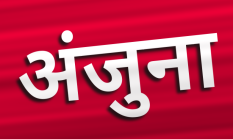
अंजुना